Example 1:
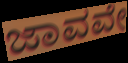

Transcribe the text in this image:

ಜಾವವೇ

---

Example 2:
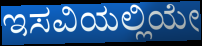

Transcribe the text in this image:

ಇಸವಿಯಲ್ಲಿಯೇ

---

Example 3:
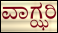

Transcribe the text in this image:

ವಾಗ್ಝರಿ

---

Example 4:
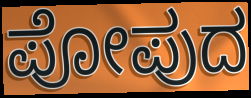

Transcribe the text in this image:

ಪೋಪುದ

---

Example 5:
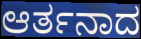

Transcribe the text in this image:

ಆರ್ತನಾದ